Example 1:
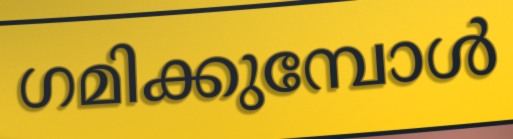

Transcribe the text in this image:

ഗമിക്കുമ്പോൾ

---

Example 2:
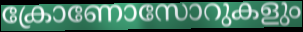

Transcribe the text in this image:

ക്രോണോസോറുകളും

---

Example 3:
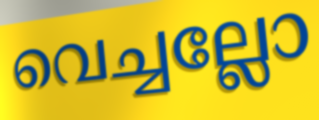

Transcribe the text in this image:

വെച്ചല്ലോ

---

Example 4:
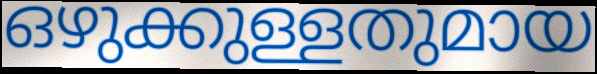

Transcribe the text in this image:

ഒഴുക്കുള്ളതുമായ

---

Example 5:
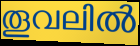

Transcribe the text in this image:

തൂവലിൽ